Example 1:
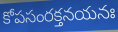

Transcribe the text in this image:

కోపసంరక్తనయనః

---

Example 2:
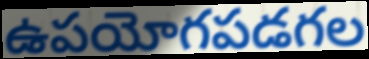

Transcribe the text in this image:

ఉపయోగపడగల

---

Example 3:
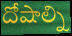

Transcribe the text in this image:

దోషాల్ని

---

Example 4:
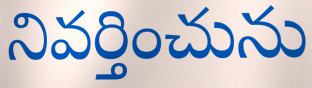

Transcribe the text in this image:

నివర్తించును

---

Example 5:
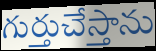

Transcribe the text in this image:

గుర్తుచేస్తాను